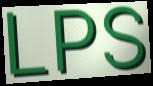
LPS